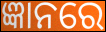
ଜ୍ଞାନରେ